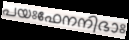
പയഃഫേനനിഭാഃ